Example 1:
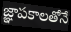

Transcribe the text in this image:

జ్ఞాపకాలతోనే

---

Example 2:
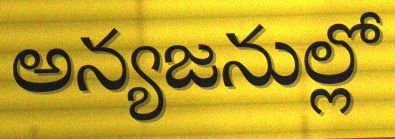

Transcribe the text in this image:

అన్యజనుల్లో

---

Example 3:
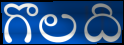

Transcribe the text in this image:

గొలది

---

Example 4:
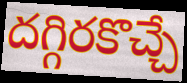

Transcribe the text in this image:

దగ్గిరకొచ్చే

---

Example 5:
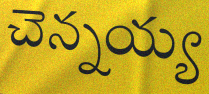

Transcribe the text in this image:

చెన్నయ్య